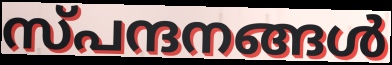
സ്പന്ദനങ്ങൾ